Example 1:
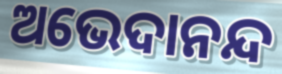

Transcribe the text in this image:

ଅଭେଦାନନ୍ଦ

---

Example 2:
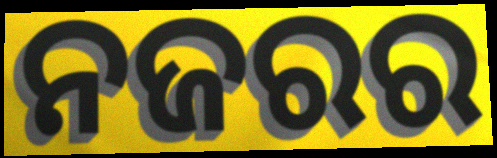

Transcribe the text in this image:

ନଜରର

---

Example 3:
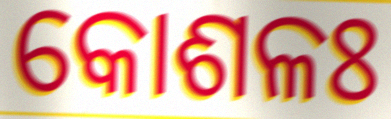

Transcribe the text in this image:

କୋଶଳଃ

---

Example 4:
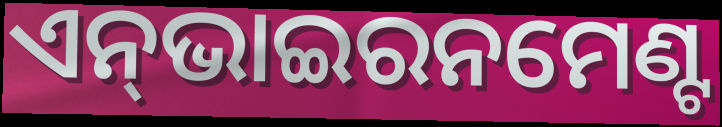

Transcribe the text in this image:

ଏନ୍‌ଭାଇରନମେଣ୍ଟ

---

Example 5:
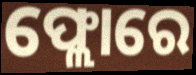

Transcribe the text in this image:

ଫ୍ଲୋରେ